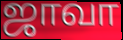
ஜாவா